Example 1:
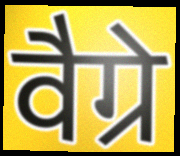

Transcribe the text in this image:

वैग्रे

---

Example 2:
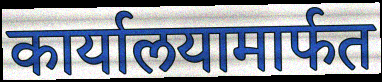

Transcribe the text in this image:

कार्यालयामार्फत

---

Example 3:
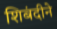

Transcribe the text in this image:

शिबंदीने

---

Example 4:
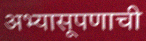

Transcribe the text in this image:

अभ्यासूपणाची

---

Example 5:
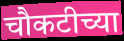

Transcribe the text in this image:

चौकटीच्या